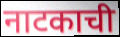
नाटकाची